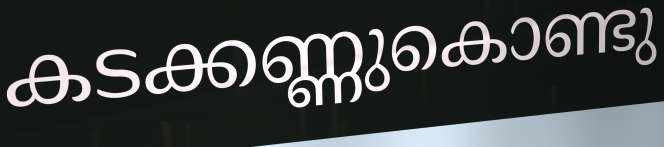
കടക്കണ്ണുകൊണ്ടു